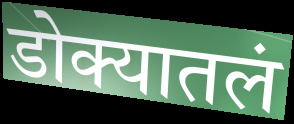
डोक्यातलं